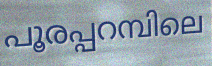
പൂരപ്പറമ്പിലെ